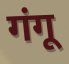
गंगू